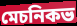
মেচনিকভ